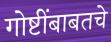
गोष्टींबाबतचे